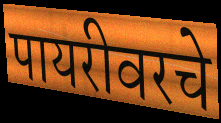
पायरीवरचे